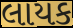
લાયક